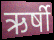
ऋर्षी